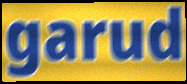
garud